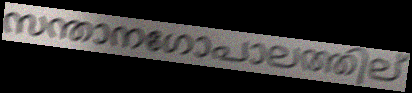
സന്താനഗോപാലത്തില്